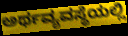
ಅರ್ಥವ್ಯವಸ್ಥೆಯಲ್ಲಿ